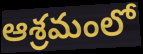
ఆశ్రమంలో